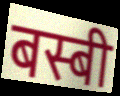
बस्बी